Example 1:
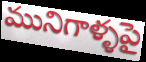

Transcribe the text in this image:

మునిగాళ్ళపై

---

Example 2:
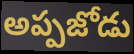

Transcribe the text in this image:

అప్పజోడు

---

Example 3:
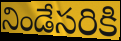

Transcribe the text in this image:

నిండేసరికి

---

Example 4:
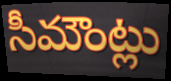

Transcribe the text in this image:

సీమౌంట్లు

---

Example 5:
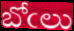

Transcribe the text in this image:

బోఁలు